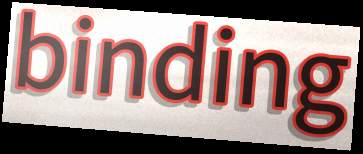
binding